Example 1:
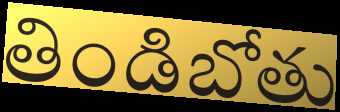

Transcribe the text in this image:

తిండిబోతు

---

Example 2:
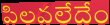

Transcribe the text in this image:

పిలవలేదేం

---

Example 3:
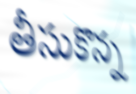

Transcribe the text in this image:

తీసుకొన్న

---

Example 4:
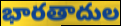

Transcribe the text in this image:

భారతాదుల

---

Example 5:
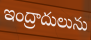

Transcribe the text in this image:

ఇంద్రాదులును